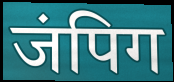
जंपिग